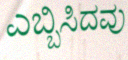
ಎಬ್ಬಿಸಿದವು